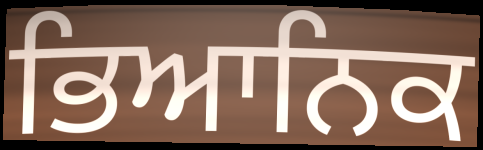
ਭਿਆਨਿਕ